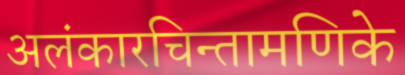
अलंकारचिन्तामणिके